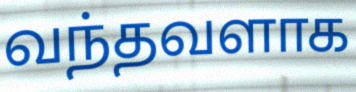
வந்தவளாக